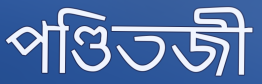
পণ্ডিতজী